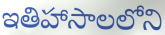
ఇతిహాసాలలోని